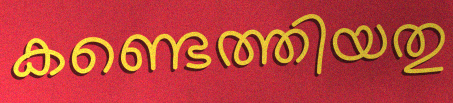
കണ്ടെത്തിയതു